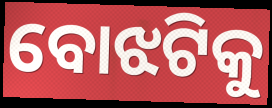
ବୋଝଟିକୁ